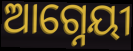
ଆଗ୍ନେୟୀ